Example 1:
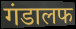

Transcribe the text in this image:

गंडालफ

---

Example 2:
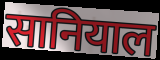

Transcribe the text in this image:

सानियाल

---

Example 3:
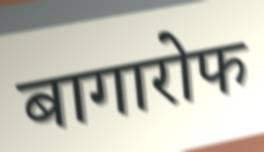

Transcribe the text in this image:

बागारोफ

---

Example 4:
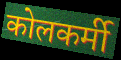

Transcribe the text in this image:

कोलकर्मी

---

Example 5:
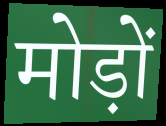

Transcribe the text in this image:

मोड़ों